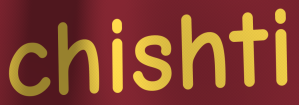
chishti